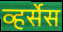
व्हर्सेस